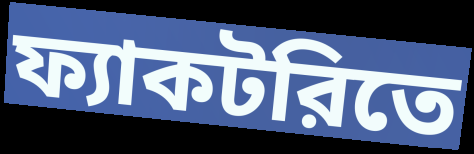
ফ্যাকটরিতে